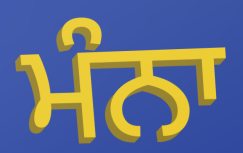
ਮੰਨਾ